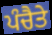
ਪੰਚੈਤੇ